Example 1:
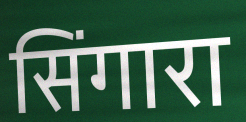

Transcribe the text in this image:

सिंगारा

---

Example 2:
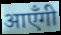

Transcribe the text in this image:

आएँगी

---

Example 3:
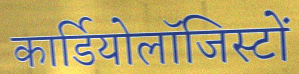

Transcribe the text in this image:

कार्डियोलॉजिस्टों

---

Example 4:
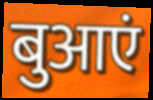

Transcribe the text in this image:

बुआएं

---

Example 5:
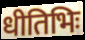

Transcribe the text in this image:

धीतिभिः